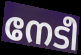
നേടീ